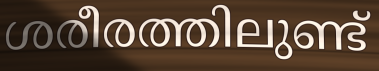
ശരീരത്തിലുണ്ട്